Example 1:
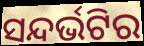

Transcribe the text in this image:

ସନ୍ଦର୍ଭଟିର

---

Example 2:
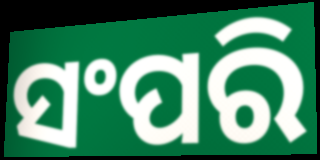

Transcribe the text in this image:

ସଂପରି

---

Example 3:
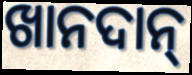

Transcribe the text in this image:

ଖାନଦାନ୍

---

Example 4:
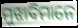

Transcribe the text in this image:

ମୁଝାବିମାନେ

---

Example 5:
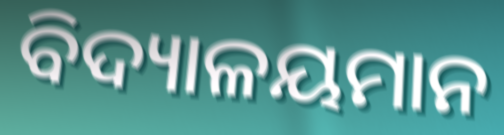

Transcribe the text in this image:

ବିଦ୍ୟାଳୟମାନ